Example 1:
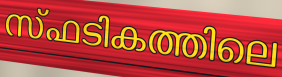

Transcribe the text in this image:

സ്ഫടികത്തിലെ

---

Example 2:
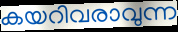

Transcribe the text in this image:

കയറിവരാവുന്ന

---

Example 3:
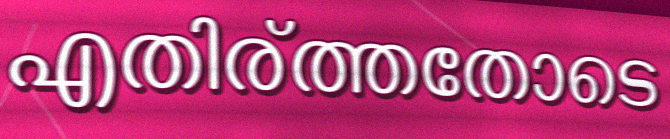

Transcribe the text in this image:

എതിര്ത്തതോടെ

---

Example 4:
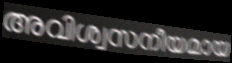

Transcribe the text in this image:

അവിശ്വസനീയമായ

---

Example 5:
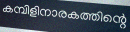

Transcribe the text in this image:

കമ്പിളിനാരകത്തിന്റെ